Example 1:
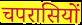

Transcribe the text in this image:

चपरासियों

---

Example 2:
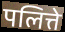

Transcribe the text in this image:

पलित्ते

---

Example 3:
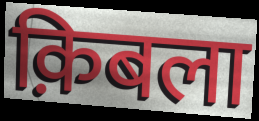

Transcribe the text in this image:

क़िबला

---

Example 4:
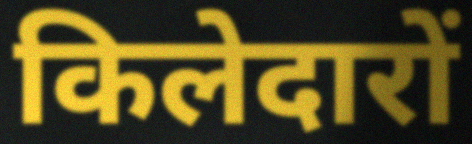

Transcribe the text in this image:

किलेदारों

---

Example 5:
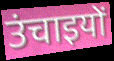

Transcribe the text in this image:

उंचाइयों